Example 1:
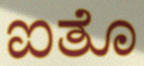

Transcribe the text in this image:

ಐತೊ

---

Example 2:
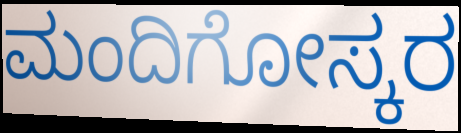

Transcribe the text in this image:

ಮಂದಿಗೋಸ್ಕರ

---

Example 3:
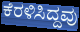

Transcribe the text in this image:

ಕೆರಳಿಸಿದ್ದವು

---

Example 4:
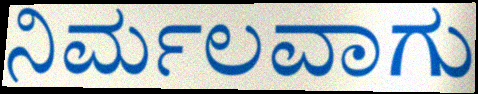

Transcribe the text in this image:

ನಿರ್ಮಲವಾಗು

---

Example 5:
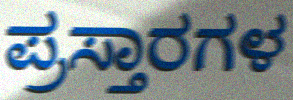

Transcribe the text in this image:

ಪ್ರಸ್ತಾರಗಳ